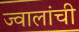
ज्वालांची